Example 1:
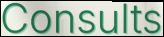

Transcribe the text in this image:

Consults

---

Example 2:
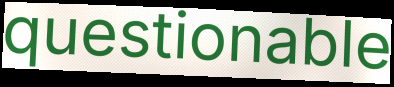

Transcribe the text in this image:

questionable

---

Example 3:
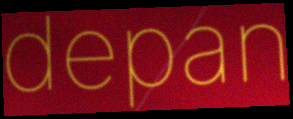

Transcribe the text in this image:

depan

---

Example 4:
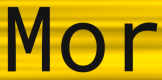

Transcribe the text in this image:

Mor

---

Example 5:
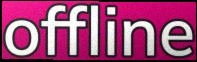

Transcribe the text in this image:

offline